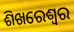
ଶିଖରେଶ୍ୱର